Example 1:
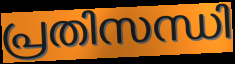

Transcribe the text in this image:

പ്രതിസന്ധി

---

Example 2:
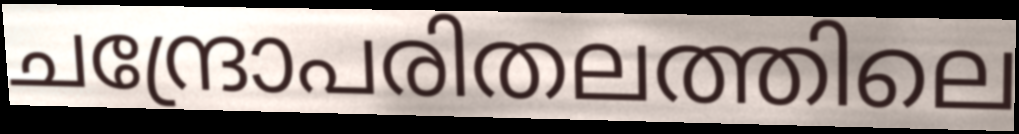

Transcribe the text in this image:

ചന്ദ്രോപരിതലത്തിലെ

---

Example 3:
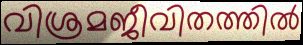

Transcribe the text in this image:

വിശ്രമജീവിതത്തിൽ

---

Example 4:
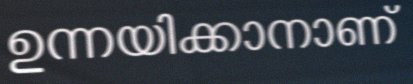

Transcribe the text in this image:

ഉന്നയിക്കാനാണ്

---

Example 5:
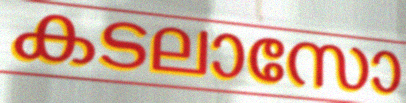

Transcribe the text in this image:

കടലാസോ